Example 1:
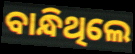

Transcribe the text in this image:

ବାନ୍ଧିଥିଲେ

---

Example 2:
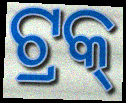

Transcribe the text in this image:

ଟ୍ରକ୍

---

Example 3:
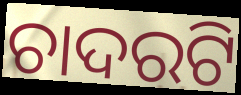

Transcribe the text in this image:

ଚାଦରଟି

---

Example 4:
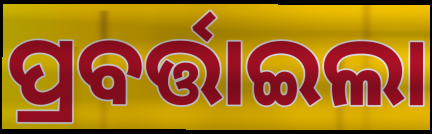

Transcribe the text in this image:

ପ୍ରବର୍ତ୍ତାଇଲା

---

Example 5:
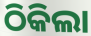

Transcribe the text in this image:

ଠିକିଲା